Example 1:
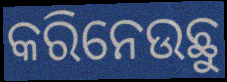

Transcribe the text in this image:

କରିନେଉଛୁ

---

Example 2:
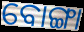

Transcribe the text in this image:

ବୋଙ୍ଗା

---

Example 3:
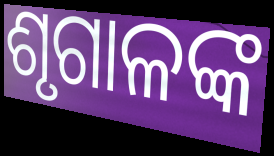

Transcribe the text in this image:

ଶୃଗାଳଙ୍କ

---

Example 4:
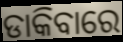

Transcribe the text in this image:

ଡାକିବାରେ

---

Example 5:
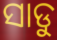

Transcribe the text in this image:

ସାଡୁ